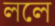
ললে